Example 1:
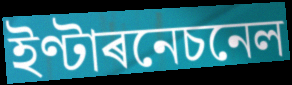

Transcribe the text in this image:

ইণ্টাৰনেচনেল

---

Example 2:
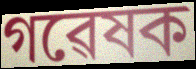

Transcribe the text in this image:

গৱেষক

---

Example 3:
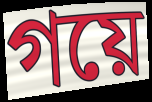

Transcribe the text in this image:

গয়ে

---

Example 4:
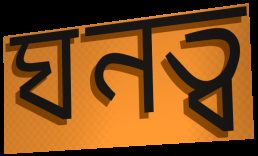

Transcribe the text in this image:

ঘনত্ব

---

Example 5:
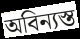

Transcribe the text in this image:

অবিন্যস্ত